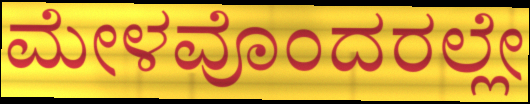
ಮೇಳವೊಂದರಲ್ಲೇ